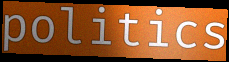
politics